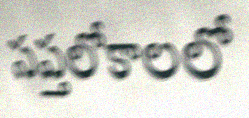
సప్తలోకాలలో